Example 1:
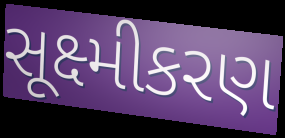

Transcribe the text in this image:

સૂક્ષ્મીકરણ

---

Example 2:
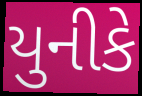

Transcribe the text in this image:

યુનીકે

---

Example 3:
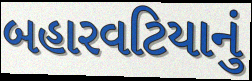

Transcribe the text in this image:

બહારવટિયાનું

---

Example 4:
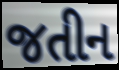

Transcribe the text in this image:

જતીન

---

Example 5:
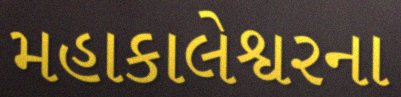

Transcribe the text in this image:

મહાકાલેશ્વરના